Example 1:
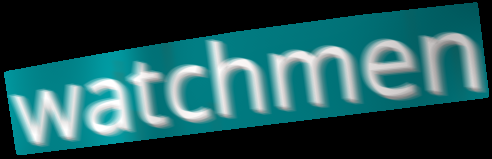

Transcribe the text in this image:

watchmen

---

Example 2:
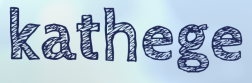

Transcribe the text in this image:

kathege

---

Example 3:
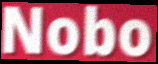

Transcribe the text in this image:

Nobo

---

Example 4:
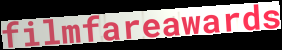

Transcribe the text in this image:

filmfareawards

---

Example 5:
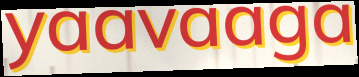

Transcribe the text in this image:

yaavaaga